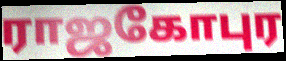
ராஜகோபுர